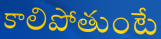
కాలిపోతుంటే